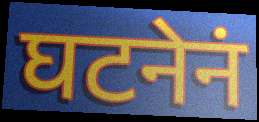
घटनेनं